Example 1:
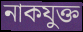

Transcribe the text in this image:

নাকযুক্ত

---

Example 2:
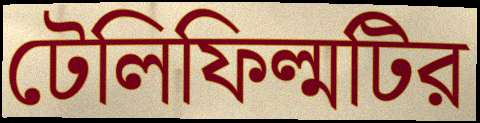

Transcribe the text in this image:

টেলিফিল্মটির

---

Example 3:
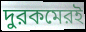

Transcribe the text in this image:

দুরকমেরই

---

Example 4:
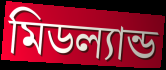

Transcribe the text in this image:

মিডল্যান্ড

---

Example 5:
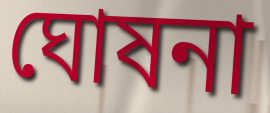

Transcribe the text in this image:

ঘোষনা